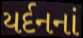
યર્દનનાં